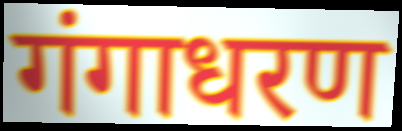
गंगाधरण